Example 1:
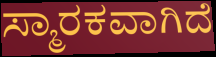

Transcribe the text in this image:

ಸ್ಮಾರಕವಾಗಿದೆ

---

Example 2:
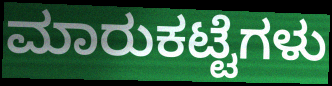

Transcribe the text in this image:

ಮಾರುಕಟ್ಟೆಗಳು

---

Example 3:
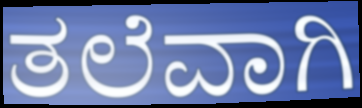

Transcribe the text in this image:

ತಲೆವಾಗಿ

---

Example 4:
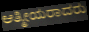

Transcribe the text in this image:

ಆತ್ಮೀಯರಾದರು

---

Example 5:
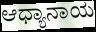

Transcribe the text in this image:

ಆಧ್ಯಾನಾಯ